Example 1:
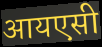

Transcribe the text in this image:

आयएसी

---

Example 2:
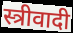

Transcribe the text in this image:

स्त्रीवादी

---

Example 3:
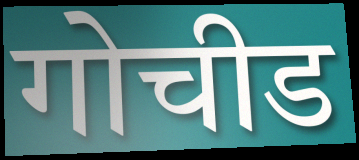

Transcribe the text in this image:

गोचीड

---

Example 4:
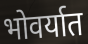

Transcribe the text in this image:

भोवर्यात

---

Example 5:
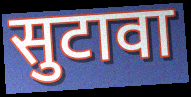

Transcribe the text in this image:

सुटावा